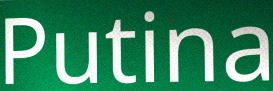
Putina